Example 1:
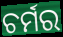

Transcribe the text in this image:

ଚର୍ମର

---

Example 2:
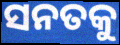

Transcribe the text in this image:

ସନତକୁ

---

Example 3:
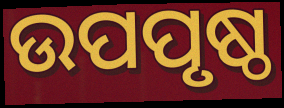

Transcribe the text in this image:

ଉପପୃଷ୍ଠ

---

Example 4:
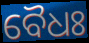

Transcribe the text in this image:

ବୈଧଃ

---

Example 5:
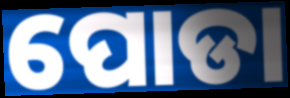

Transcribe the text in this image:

ପୋଡା